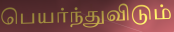
பெயர்ந்துவிடும்